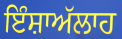
ਇੰਸ਼ਾਅੱਲਾਹ